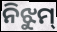
ନିଝୁମ୍